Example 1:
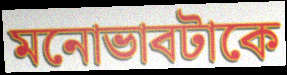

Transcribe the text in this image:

মনোভাবটাকে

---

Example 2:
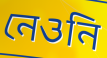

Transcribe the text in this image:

নেওনি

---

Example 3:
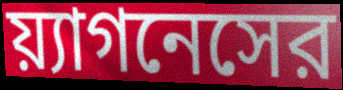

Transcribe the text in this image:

য়্যাগনেসের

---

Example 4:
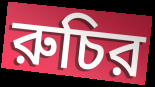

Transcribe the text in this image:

রুচির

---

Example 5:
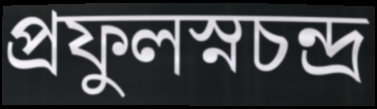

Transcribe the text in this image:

প্রফুলস্নচন্দ্র